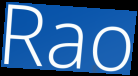
Rao